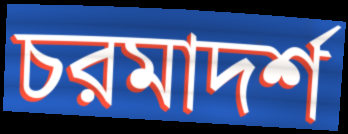
চরমাদর্শ